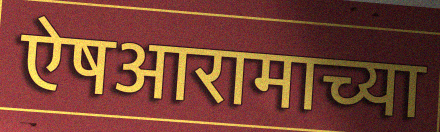
ऐषआरामाच्या